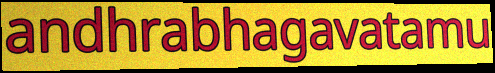
andhrabhagavatamu